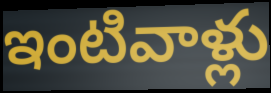
ఇంటివాళ్లు